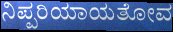
ನಿಪ್ಪರಿಯಾಯತೋವ